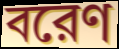
বরেণ